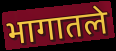
भागातले